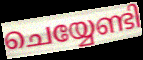
ചെയ്യേണ്ടി